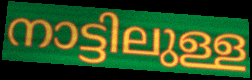
നാട്ടിലുള്ള